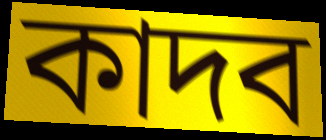
কাদব